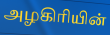
அழகிரியின்